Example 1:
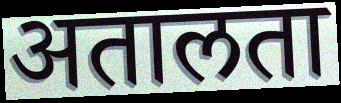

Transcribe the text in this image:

अतालता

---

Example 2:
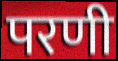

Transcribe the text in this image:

परणी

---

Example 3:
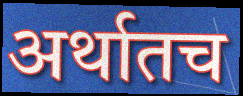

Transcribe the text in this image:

अर्थातच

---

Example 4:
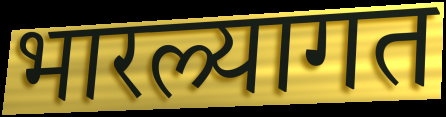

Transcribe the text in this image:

भारल्यागत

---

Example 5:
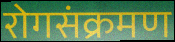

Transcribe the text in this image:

रोगसंक्रमण